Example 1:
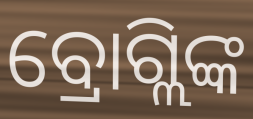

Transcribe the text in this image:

ବ୍ରୋଗ୍ଲିଙ୍କ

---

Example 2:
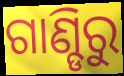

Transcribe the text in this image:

ଗାଣ୍ଡିରୁ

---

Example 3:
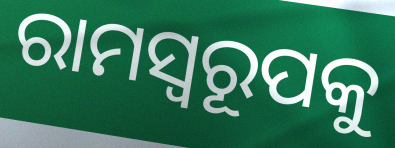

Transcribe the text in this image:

ରାମସ୍ୱରୂପକୁ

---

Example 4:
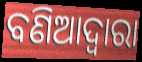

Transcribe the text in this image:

ବଣିଆଦ୍ୱାରା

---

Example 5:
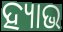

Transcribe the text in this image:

ହ୍ୟାଭ